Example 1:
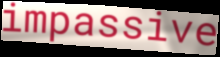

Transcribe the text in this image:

impassive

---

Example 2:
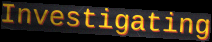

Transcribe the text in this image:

Investigating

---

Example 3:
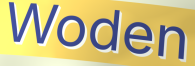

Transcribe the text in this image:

Woden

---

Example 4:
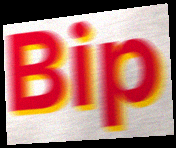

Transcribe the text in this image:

Bip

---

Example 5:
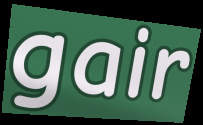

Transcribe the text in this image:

gair